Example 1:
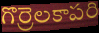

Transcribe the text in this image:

గొర్రెలకాపరి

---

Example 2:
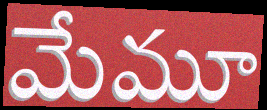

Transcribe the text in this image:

మేమూ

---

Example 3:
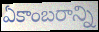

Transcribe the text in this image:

ఏకాంబరాన్ని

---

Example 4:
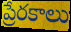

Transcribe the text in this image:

ప్రేరకాలు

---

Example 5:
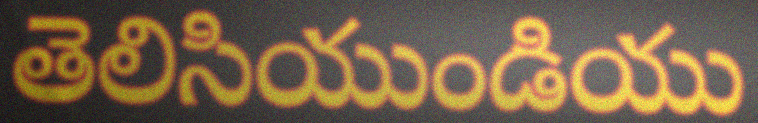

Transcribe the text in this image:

తెలిసియుండియు